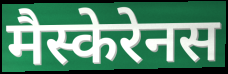
मैस्केरेनस